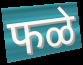
फळे